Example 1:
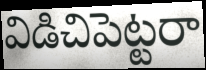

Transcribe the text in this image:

విడిచిపెట్టరా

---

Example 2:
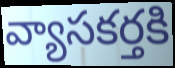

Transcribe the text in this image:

వ్యాసకర్తకి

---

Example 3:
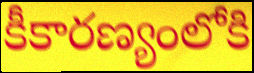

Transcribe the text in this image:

కీకారణ్యంలోకి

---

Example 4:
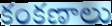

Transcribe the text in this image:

కంకణాలు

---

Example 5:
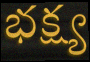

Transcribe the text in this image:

భక్ష్య